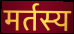
मर्तस्य